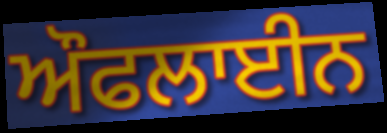
ਔਫਲਾਈਨ